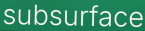
subsurface